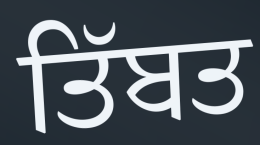
ਤਿੱਬਤ